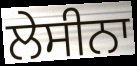
ਲੇਸੀਨਾ